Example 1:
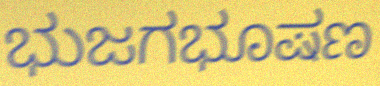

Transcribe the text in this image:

ಭುಜಗಭೂಷಣ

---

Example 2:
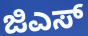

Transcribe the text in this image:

ಜಿಎಸ್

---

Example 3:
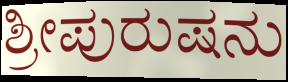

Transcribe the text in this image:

ಶ್ರೀಪುರುಷನು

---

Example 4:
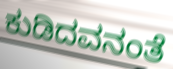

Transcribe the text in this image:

ಕುಡಿದವನಂತೆ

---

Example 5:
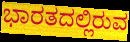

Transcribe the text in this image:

ಭಾರತದಲ್ಲಿರುವ